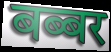
बब्बर